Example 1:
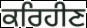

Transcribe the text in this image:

ਕਰਿਹੀਣ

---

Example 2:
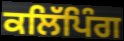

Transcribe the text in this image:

ਕਲਿੱਪਿੰਗ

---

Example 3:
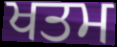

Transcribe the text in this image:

ਖਤਮ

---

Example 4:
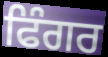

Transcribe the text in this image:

ਫਿੰਗਰ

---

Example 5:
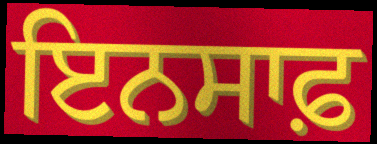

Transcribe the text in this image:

ਇਨਸਾਫ਼